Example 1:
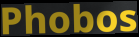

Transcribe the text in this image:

Phobos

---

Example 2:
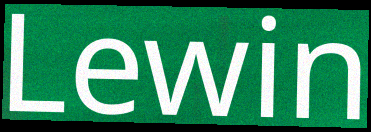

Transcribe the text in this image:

Lewin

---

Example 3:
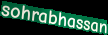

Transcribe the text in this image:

sohrabhassan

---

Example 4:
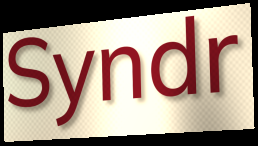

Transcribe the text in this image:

Syndr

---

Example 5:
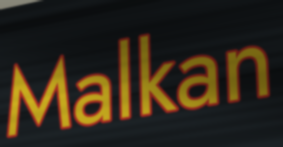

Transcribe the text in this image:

Malkan